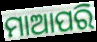
ମାଆପରି